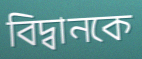
বিদ্বানকে